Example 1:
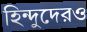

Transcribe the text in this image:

হিন্দুদেরও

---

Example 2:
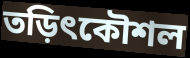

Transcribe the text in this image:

তড়িৎকৌশল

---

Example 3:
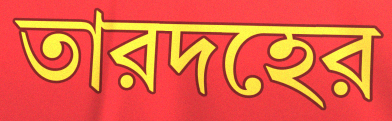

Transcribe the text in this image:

তারদহের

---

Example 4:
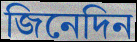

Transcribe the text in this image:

জিনেদিন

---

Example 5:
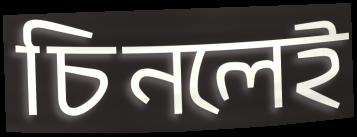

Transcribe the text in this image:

চিনলেই